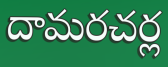
దామరచర్ల